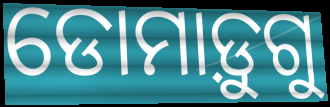
ଡୋମାଡ଼ୁଗୁ